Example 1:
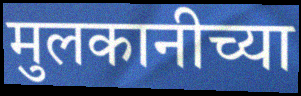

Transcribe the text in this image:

मुलकानीच्या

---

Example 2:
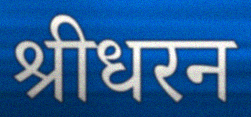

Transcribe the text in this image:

श्रीधरन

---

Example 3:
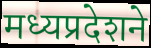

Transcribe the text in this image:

मध्यप्रदेशने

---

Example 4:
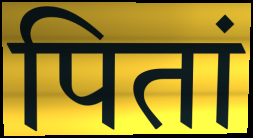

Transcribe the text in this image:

पितां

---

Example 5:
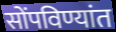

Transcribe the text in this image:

सोंपविण्यांत